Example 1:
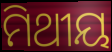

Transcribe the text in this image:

ମିଥୀୟ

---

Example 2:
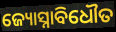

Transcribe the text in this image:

ଜ୍ୟୋସ୍ନାବିଧୌତ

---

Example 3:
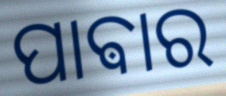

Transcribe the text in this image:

ପାଵାର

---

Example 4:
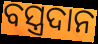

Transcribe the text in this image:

ବସ୍ତ୍ରଦାନ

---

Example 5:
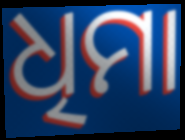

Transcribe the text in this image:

ଧିମା